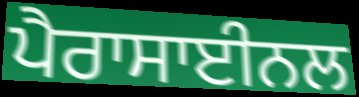
ਪੈਰਾਸਾਈਨਲ